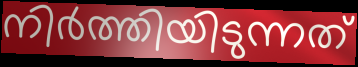
നിർത്തിയിടുന്നത്